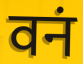
वनं